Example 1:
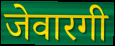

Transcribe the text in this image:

जेवारगी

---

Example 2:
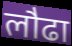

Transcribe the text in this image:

लौढा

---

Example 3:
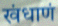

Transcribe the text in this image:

खंधाणं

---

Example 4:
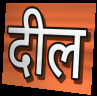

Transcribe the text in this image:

दील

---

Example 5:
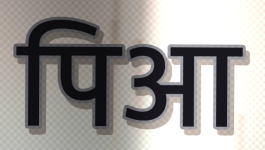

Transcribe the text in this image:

पिआ